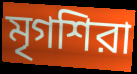
মৃগশিরা